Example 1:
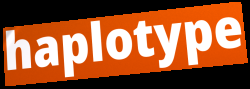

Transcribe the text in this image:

haplotype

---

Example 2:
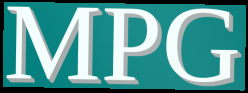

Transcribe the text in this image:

MPG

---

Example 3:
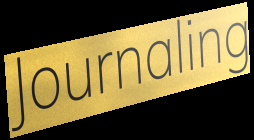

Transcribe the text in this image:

Journaling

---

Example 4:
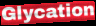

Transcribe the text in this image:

Glycation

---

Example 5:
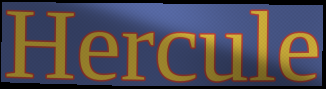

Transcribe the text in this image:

Hercule